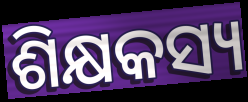
ଶିକ୍ଷକସ୍ୟ